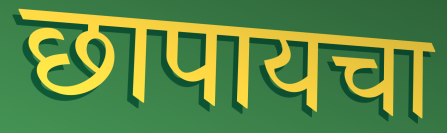
छापायचा